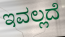
ಇವಲ್ಲದೆ